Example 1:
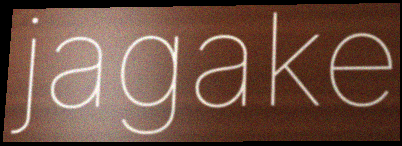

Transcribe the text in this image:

jagake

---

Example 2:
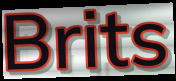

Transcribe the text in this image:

Brits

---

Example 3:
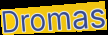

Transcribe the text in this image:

Dromas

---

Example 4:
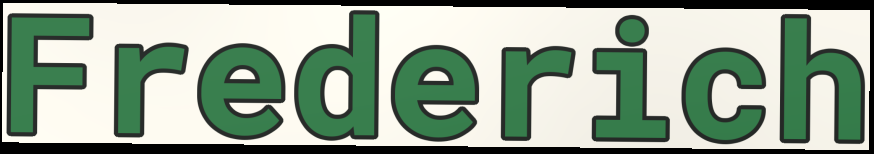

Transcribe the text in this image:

Frederich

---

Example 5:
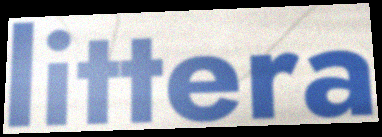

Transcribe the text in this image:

littera